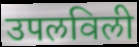
उपलविली